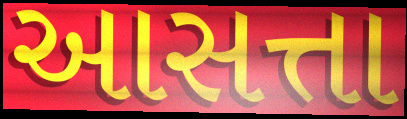
આસત્તા